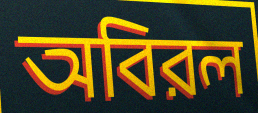
অবিরল